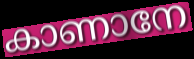
കാണാനേ